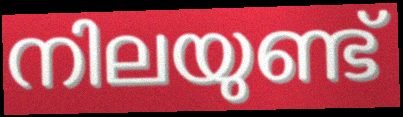
നിലയുണ്ട്